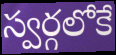
స్వర్గలోకే